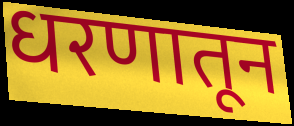
धरणातून